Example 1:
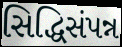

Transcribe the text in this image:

સિદ્ધિસંપન્ન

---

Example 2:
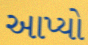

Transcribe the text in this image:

આપ્યો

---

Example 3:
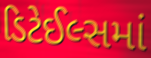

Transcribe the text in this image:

ડિટેઈલ્સમાં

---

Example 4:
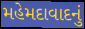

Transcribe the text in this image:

મહેમદાવાદનું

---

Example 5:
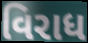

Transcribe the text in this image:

વિરાધ